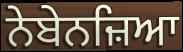
ਨੇਬੇਨਜ਼ਿਆ